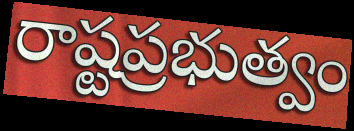
రాష్టప్రభుత్వం